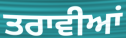
ਤਰਾਵੀਆਂ